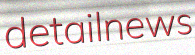
detailnews